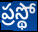
ప్రస్థో